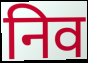
निव